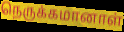
நெருக்கமானாள்